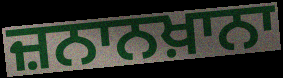
ਜ਼ਨਾਨਖ਼ਾਨਾ